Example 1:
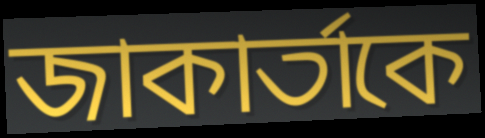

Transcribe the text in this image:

জাকার্তাকে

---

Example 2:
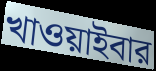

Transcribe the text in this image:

খাওয়াইবার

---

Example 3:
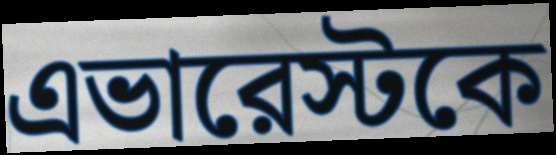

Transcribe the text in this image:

এভারেস্টকে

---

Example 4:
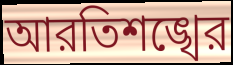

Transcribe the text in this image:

আরতিশঙ্খের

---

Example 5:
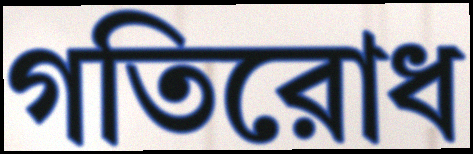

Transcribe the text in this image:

গতিরোধ